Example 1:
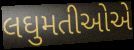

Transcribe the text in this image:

લઘુમતીઓએ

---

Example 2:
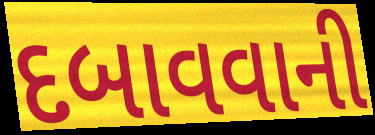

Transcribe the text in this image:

દબાવવાની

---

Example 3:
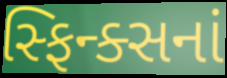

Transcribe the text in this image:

સ્ફિન્ક્સનાં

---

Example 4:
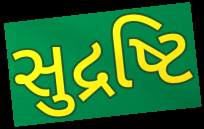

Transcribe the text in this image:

સુદ્રષ્ટિ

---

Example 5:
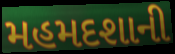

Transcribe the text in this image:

મહમદશાની